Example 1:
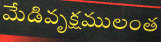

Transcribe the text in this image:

మేడివృక్షములంత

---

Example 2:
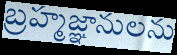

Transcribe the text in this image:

బ్రహ్మజ్ఞానులను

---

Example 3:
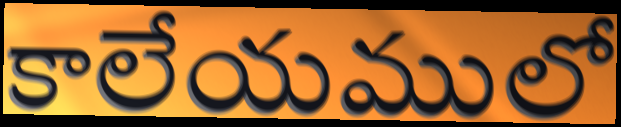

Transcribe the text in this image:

కాలేయములో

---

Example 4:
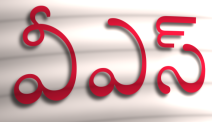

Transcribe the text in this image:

వీఎస్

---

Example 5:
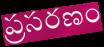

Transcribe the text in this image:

ప్రసరణం